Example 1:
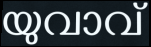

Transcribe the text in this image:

യുവാവ്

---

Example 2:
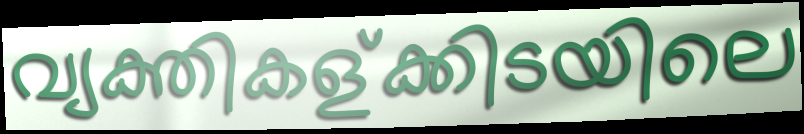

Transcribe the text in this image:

വ്യക്തികള്ക്കിടയിലെ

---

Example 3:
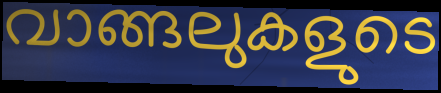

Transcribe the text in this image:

വാങ്ങലുകളുടെ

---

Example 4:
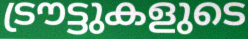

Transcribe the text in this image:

ട്രൗട്ടുകളുടെ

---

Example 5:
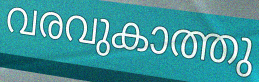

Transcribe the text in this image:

വരവുകാത്തു